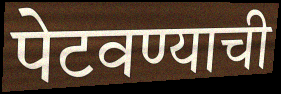
पेटवण्याची